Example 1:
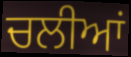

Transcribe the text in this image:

ਚਲੀਆਂ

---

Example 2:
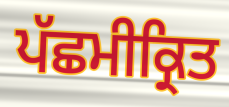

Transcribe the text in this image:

ਪੱਛਮੀਕ੍ਰਿਤ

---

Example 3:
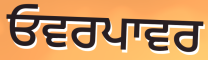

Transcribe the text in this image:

ਓਵਰਪਾਵਰ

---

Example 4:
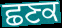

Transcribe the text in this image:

ਛਣਕ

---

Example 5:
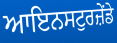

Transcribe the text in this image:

ਆਇਨਸਟੁਰਜ਼ੇਂਡੇ